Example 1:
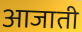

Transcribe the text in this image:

आजाती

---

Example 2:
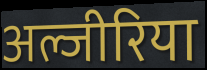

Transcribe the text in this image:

अल्जीरिया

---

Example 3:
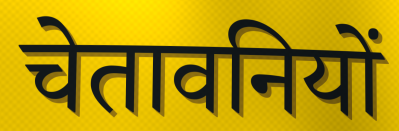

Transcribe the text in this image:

चेतावनियों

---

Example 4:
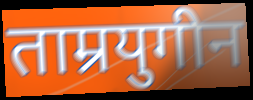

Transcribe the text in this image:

ताम्रयुगीन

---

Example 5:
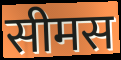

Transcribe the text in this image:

सीमस